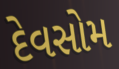
દેવસોમ